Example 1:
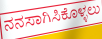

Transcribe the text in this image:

ನನಸಾಗಿಸಿಕೊಳ್ಳಲು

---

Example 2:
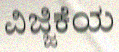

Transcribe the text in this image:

ವಿಜ್ಜಿಕೆಯ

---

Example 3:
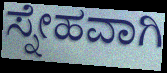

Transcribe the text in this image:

ಸ್ನೇಹವಾಗಿ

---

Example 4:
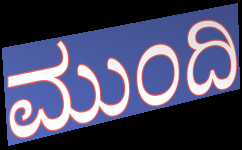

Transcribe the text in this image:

ಮುಂದಿ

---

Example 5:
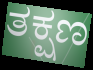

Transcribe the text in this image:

ತಕ್ಷಣ